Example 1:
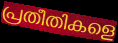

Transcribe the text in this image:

പ്രതീതികളെ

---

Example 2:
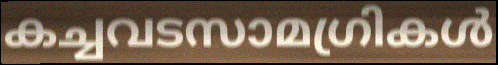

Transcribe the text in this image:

കച്ചവടസാമഗ്രികൾ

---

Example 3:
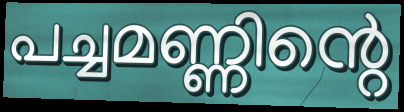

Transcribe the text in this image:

പച്ചമണ്ണിന്റെ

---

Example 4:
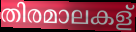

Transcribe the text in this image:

തിരമാലകള്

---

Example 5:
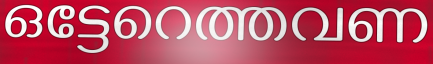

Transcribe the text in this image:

ഒട്ടേറെത്തവണ